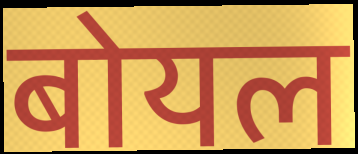
बोयल